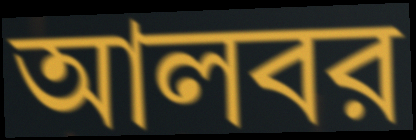
আলবর